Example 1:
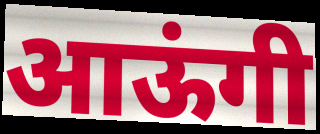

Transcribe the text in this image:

आऊंगी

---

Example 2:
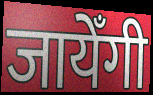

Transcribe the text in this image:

जायेँगी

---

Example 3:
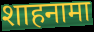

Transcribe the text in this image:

शाहनामा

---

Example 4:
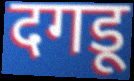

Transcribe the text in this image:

दगडू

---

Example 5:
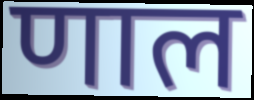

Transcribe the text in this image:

णाल